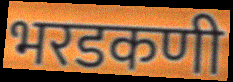
भरडकणी